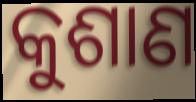
କୁଶାଣ